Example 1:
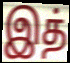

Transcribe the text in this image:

இத்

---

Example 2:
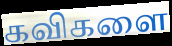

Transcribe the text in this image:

கவிகளை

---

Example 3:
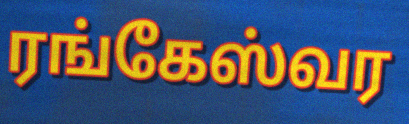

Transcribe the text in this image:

ரங்கேஸ்வர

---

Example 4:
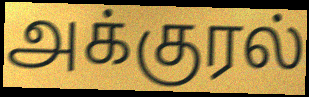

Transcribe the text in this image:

அக்குரல்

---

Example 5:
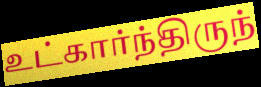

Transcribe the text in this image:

உட்கார்ந்திருந்